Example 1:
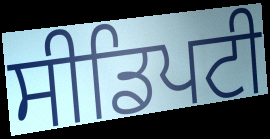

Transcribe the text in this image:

ਸੀਡਿਪਟੀ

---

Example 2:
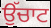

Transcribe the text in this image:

ਉੱਚਾਟ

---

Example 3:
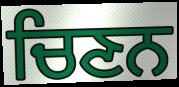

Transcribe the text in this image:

ਚਿਣਨ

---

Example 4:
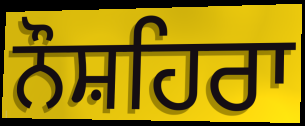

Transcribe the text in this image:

ਨੌਸ਼ਹਿਰਾ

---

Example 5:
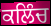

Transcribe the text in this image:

ਕਲਿੰਚ